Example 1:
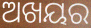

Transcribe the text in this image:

ଅଖୟର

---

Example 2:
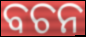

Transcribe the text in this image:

ବଚନ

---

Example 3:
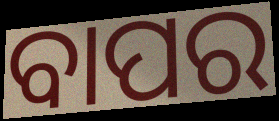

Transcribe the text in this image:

ବାପର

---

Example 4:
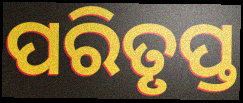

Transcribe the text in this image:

ପରିତୃପ୍ତ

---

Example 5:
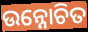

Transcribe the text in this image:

ଉନ୍ନୋଚିତ